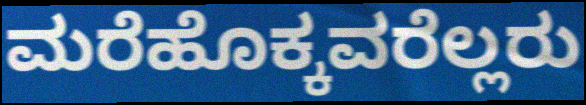
ಮರೆಹೊಕ್ಕವರೆಲ್ಲರು